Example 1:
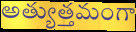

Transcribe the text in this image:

అత్యుత్తమంగా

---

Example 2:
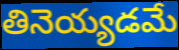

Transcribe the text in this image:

తినెయ్యడమే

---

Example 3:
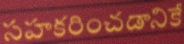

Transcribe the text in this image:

సహకరించడానికే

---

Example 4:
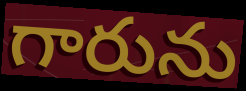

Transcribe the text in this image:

గారును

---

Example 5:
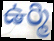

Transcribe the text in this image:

ఉర్మి